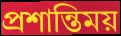
প্রশান্তিময়